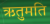
ऋतुमति